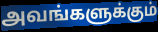
அவங்களுக்கும்